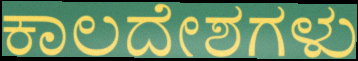
ಕಾಲದೇಶಗಳು